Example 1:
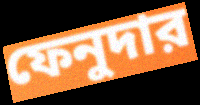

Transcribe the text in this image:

ফেনুদার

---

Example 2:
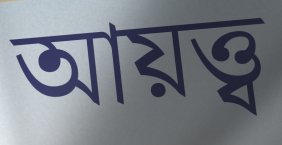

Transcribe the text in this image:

আয়ত্ত্ব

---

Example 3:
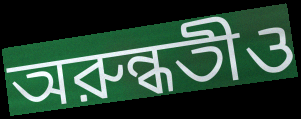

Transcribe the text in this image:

অরুন্ধতীও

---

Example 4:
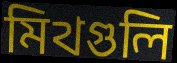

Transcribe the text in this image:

মিথগুলি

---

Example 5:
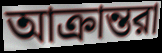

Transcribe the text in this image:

আক্রান্তরা